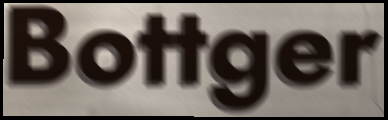
Bottger